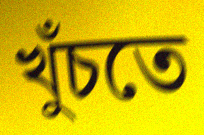
খুঁচতে